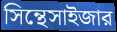
সিন্থেসাইজার